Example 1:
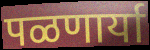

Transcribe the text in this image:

पळणार्या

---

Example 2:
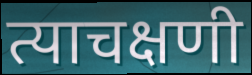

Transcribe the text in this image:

त्याचक्षणी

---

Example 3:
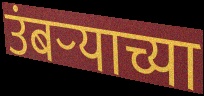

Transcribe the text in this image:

उंबऱ्याच्या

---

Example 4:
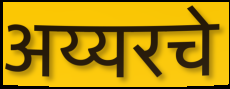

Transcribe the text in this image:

अय्यरचे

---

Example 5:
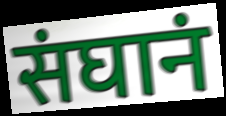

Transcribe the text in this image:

संघानं